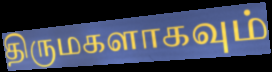
திருமகளாகவும்